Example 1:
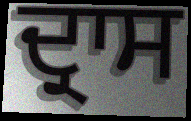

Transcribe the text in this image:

ਦ੍ਰਾਸ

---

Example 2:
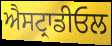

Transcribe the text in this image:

ਐਸਟ੍ਰਾਡੀਓਲ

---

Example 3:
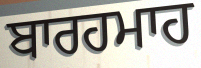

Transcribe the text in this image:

ਬਾਰਹਮਾਹ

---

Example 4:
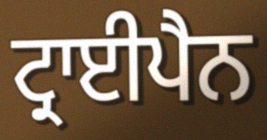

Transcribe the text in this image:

ਟ੍ਰਾਈਪੈਨ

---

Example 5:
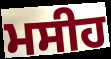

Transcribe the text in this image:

ਮਸੀਹ